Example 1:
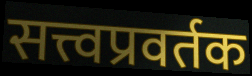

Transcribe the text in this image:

सत्त्वप्रवर्तक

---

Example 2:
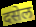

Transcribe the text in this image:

दसेल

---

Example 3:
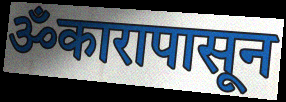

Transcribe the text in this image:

ॐकारापासून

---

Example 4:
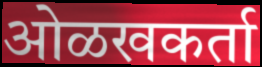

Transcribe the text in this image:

ओळखकर्ता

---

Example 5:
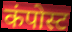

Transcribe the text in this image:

कंपोस्ट